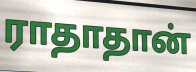
ராதாதான்